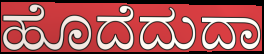
ಹೊದೆದುದಾ